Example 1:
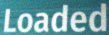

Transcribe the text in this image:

Loaded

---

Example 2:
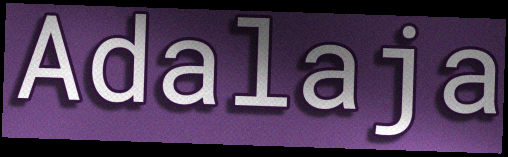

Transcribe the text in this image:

Adalaja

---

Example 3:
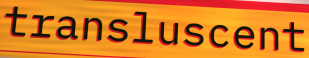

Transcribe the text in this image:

transluscent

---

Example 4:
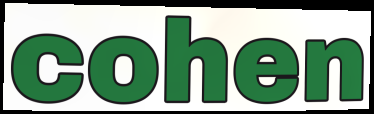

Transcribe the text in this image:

cohen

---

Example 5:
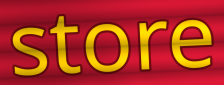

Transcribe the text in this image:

store